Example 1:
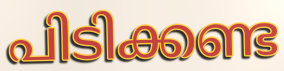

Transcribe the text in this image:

പിടിക്കണ്ട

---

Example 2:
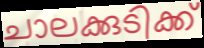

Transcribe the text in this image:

ചാലക്കുടിക്ക്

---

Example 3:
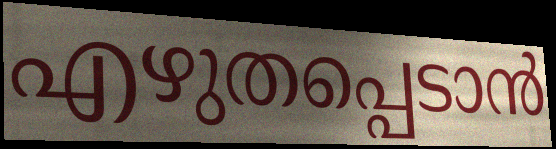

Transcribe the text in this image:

എഴുതപ്പെടാൻ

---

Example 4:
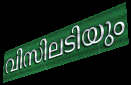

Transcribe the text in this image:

വിസിലടിയും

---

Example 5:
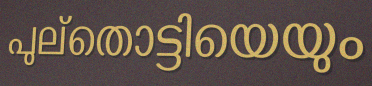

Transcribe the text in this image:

പുല്തൊട്ടിയെയും